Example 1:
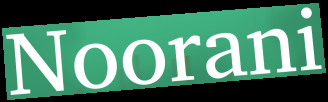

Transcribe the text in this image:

Noorani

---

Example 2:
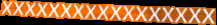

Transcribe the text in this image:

xxxxxxxxxxxxxxxxx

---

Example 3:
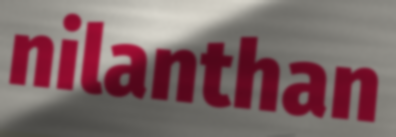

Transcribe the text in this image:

nilanthan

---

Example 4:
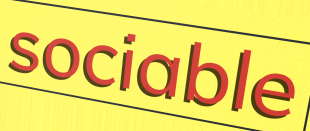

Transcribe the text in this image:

sociable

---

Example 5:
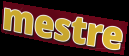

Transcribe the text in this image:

mestre